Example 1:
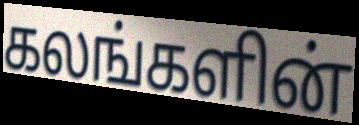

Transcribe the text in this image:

கலங்களின்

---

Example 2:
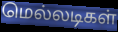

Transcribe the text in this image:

மெல்லடிகள்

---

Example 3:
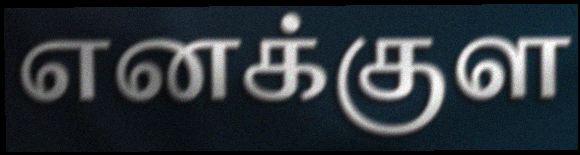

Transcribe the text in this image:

எனக்குள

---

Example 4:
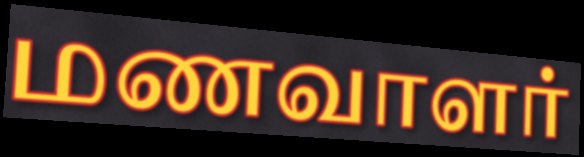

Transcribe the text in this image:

மணவாளர்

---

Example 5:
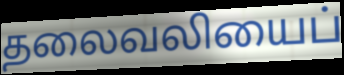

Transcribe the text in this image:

தலைவலியைப்